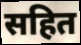
सहित